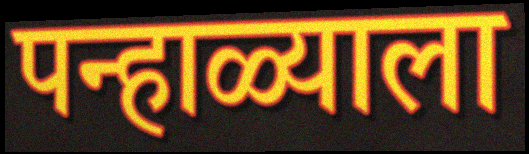
पन्हाळ्याला